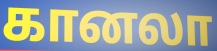
கானலா